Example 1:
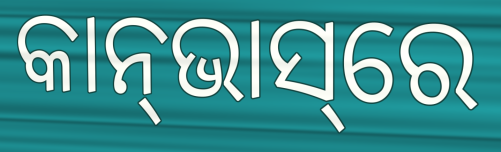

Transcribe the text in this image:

କାନ୍‌ଭାସ୍‌ରେ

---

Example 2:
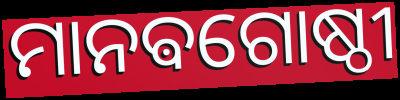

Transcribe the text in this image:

ମାନଵଗୋଷ୍ଠୀ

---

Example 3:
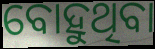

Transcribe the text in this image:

ବୋହୁଥିବା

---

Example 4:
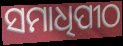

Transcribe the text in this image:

ସମାଧିପୀଠ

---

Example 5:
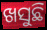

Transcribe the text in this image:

ଖସୁଛି